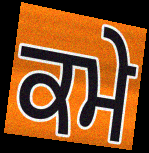
ਕਮੇ